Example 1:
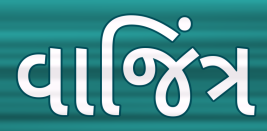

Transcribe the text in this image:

વાજિંત્ર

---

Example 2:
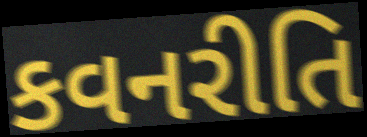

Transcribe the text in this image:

કવનરીતિ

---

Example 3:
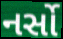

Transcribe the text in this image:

નર્સો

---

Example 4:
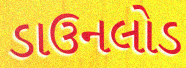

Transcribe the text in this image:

ડાઉનલોડ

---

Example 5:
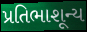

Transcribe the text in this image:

પ્રતિભાશૂન્ય